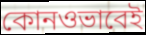
কোনওভাবেই